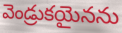
వెండ్రుకయైనను